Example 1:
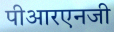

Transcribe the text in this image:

पीआरएनजी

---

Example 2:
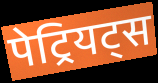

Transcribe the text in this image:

पेट्रियट्स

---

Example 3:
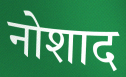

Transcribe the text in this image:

नोशाद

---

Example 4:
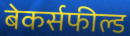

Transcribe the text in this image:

बेकर्सफील्ड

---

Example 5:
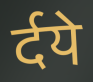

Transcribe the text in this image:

र्दये